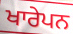
ਖਾਰੇਪਨ